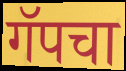
गॅपचा